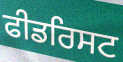
ਫੀਡਰਿਸਟ